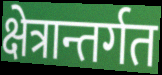
क्षेत्रान्‍तर्गत